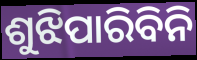
ଶୁଝିପାରିବିନି